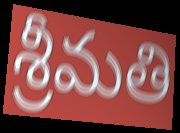
శ్రీమతి